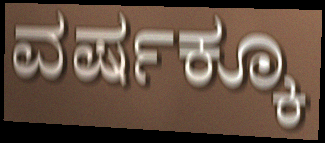
ವರ್ಷಕ್ಕೂ